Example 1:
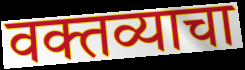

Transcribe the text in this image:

वक्तव्याचा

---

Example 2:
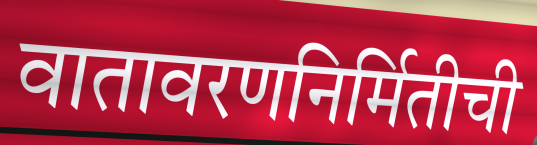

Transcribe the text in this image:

वातावरणनिर्मितीची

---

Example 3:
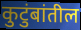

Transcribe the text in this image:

कुटुंबांतील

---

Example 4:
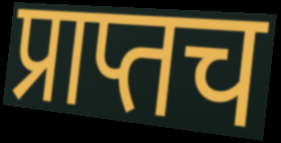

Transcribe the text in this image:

प्राप्तच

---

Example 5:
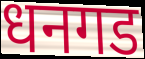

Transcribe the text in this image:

धनगड